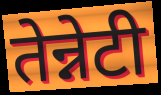
तेन्नेटी